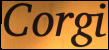
Corgi